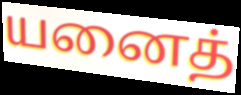
யனைத்